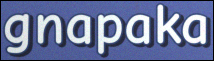
gnapaka